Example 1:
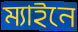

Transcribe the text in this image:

ম্যাইনে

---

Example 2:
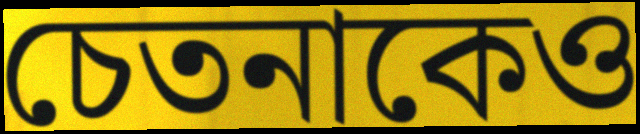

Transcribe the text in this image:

চেতনাকেও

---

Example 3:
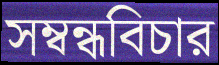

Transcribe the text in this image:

সম্বন্ধবিচার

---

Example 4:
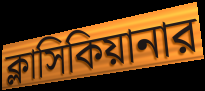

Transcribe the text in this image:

ক্লাসিকিয়ানার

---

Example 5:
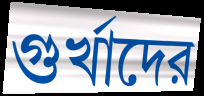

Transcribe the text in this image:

গুর্খাদের